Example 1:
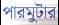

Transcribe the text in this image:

পারমুটার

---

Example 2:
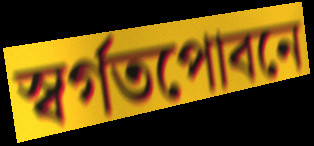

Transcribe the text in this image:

স্বর্গতপোবনে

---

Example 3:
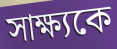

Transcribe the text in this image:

সাক্ষ্যকে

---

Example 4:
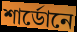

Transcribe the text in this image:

শার্ডোনে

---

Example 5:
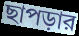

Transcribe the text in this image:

ছাপড়ার